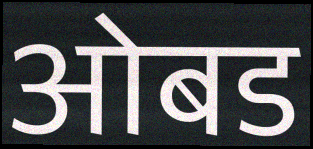
ओबड